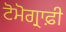
ਟੋਮੋਗ੍ਰਾਫ਼ੀ